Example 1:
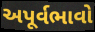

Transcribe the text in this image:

અપૂર્વભાવો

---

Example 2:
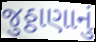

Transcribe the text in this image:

જુઠ્ઠાણાનું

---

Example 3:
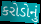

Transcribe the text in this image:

કરોડોનું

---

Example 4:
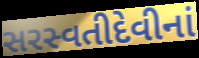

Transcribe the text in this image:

સરસ્વતીદેવીનાં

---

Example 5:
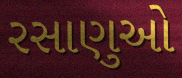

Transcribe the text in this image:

રસાણુઓ